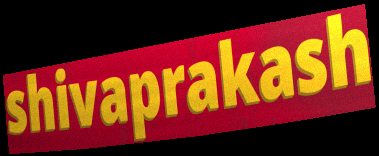
shivaprakash